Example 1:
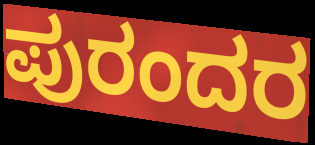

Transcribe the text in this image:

ಪುರಂದರ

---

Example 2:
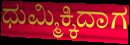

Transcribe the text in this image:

ಧುಮ್ಮಿಕ್ಕಿದಾಗ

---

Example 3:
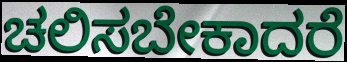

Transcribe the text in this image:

ಚಲಿಸಬೇಕಾದರೆ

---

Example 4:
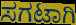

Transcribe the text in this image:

ಸಗಟಾಗಿ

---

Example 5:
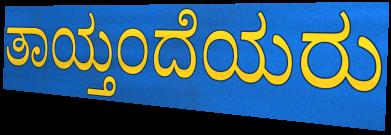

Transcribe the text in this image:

ತಾಯ್ತಂದೆಯರು